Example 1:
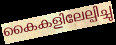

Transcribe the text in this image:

കൈകളിലേല്പിച്ചു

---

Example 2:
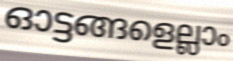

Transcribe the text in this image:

ഓട്ടങ്ങളെല്ലാം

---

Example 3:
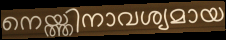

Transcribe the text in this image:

നെയ്ത്തിനാവശ്യമായ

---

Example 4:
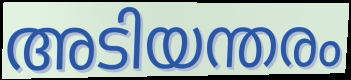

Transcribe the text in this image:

അടിയന്തരം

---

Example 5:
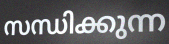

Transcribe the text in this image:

സന്ധിക്കുന്ന